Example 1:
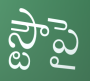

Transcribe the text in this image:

స్టౌపై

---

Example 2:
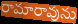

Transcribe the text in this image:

రామారావును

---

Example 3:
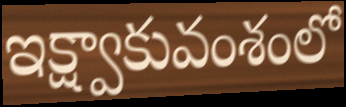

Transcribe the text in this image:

ఇక్ష్వాకువంశంలో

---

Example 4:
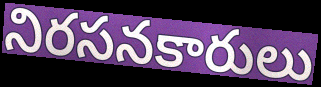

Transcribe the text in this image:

నిరసనకారులు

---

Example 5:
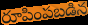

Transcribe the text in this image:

రూపింపబడిన